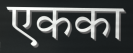
एकका